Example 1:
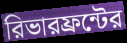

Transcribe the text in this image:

রিভারফ্রন্টের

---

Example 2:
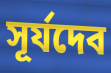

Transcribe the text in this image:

সূর্যদেব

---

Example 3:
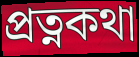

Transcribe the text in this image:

প্রত্নকথা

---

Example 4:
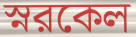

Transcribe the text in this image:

স্নরকেল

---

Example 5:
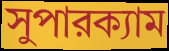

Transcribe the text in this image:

সুপারক্যাম